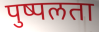
पुष्पलता